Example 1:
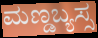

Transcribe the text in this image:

ಮಣ್ಡಬ್ಯಸ್ಸ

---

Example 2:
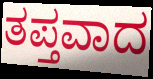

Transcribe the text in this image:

ತಪ್ತವಾದ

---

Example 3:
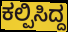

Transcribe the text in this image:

ಕಲ್ಪಿಸಿದ್ದ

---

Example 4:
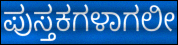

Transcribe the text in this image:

ಪುಸ್ತಕಗಳಾಗಲೀ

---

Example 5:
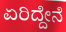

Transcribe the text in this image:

ಏರಿದ್ದೇನೆ